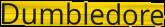
Dumbledore